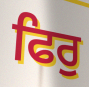
ਫਿਰੁ